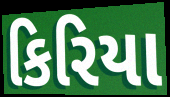
કિરિયા